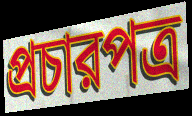
প্রচারপত্র